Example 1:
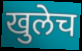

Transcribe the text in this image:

खुलेच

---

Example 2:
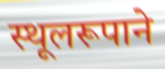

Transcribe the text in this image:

स्थूलरूपाने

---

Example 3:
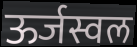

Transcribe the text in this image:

ऊर्जस्वल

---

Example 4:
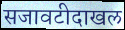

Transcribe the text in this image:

सजावटीदाखल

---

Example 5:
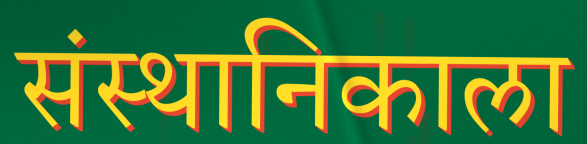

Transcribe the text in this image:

संस्थानिकाला